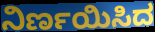
ನಿರ್ಣಯಿಸಿದ